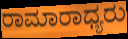
ರಾಮಾರಾಧ್ಯರು